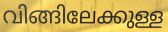
വിങ്ങിലേക്കുള്ള